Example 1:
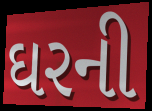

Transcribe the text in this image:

ઘરની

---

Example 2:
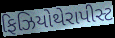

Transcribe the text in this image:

ફિઝિયોથેરાપીસ્ટ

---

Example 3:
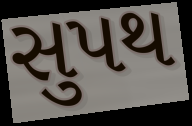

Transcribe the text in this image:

સુપથ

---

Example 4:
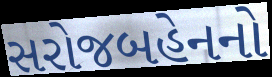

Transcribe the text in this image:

સરોજબહેનનો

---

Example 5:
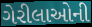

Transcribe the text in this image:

ગેરીલાઓની